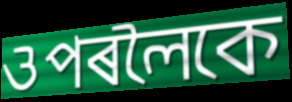
ওপৰলৈকে